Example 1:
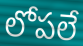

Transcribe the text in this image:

లోపలే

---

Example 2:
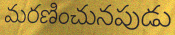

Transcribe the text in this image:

మరణించునపుడు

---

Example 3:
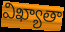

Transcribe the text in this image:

విఖ్యాతా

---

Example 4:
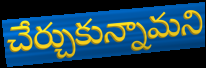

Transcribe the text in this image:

చేర్చుకున్నామని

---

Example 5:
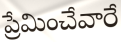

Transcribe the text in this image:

ప్రేమించేవారే